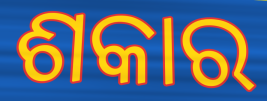
ଶକାର